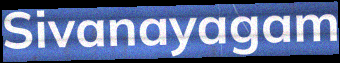
Sivanayagam